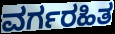
ವರ್ಗರಹಿತ